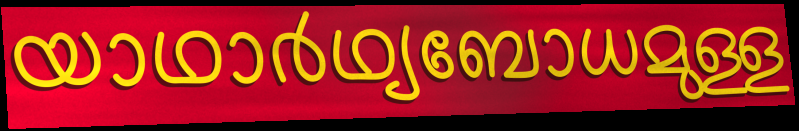
യാഥാർഥ്യബോധമുള്ള